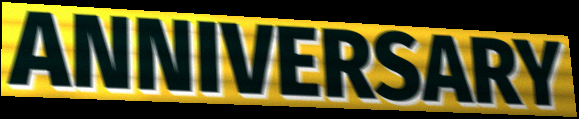
ANNIVERSARY